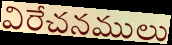
విరేచనములు